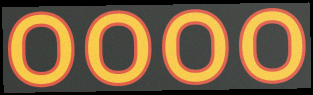
oooo